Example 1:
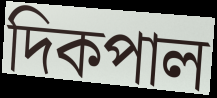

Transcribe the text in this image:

দিকপাল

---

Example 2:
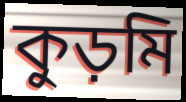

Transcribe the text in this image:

কুড়মি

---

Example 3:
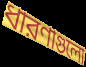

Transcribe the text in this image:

ধারণাগুলো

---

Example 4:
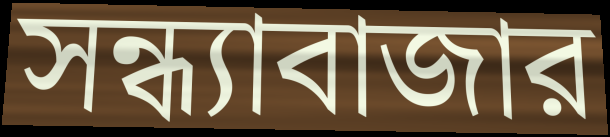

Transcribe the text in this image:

সন্ধ্যাবাজার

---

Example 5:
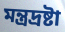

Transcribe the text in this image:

মন্ত্রদ্রষ্টা